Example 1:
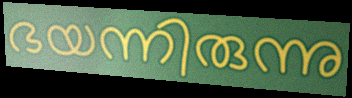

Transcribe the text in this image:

ഭയന്നിരുന്നു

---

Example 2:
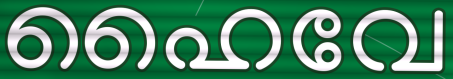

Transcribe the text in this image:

ഹൈവേ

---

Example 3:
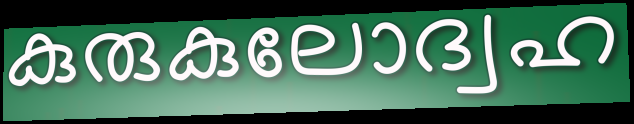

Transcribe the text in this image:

കുരുകുലോദ്വഹ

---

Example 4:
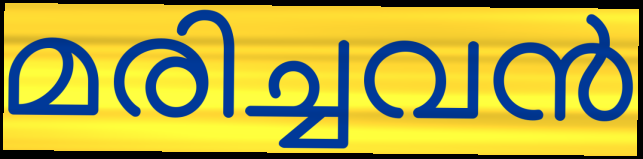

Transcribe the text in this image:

മരിച്ചവൻ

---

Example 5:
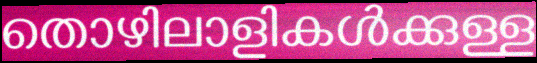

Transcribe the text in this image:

തൊഴിലാളികൾക്കുള്ള